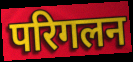
परिगलन